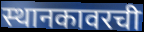
स्थानकावरची